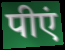
पीएं